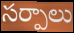
సర్పాలు